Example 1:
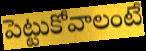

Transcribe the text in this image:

పెట్టుకోవాలంటే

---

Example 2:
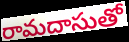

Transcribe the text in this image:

రామదాసుతో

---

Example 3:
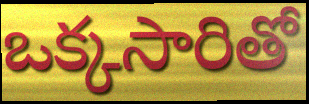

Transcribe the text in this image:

ఒక్కసారితో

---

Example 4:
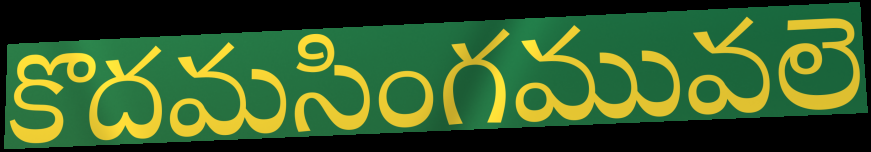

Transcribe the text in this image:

కొదమసింగమువలె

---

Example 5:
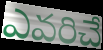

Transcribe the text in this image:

ఎవరిచే